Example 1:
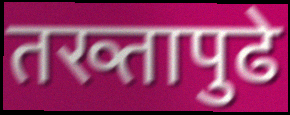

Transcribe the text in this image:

तख्तापुढे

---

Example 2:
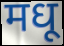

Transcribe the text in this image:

मधू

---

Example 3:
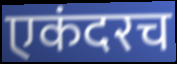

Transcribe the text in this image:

एकंदरच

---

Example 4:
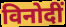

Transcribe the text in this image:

विनोदीं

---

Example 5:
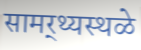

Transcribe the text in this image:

सामर्थ्यस्थळे